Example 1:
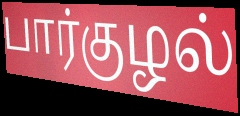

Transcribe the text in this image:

பார்குழல்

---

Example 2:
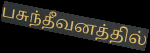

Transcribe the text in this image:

பசுந்தீவனத்தில்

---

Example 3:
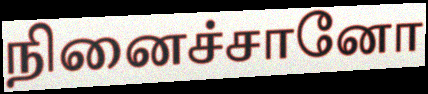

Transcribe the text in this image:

நினைச்சானோ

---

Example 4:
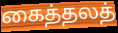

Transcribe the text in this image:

கைத்தலத்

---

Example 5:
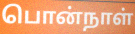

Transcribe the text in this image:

பொன்நாள்